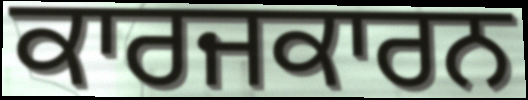
ਕਾਰਜਕਾਰਨ